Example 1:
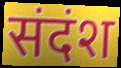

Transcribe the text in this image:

संदंश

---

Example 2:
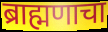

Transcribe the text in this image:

ब्राह्मणाचा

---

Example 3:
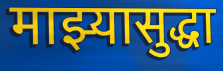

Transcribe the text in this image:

माझ्यासुद्धा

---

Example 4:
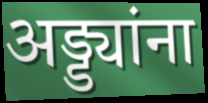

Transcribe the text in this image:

अड्ड्यांना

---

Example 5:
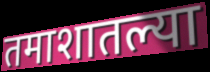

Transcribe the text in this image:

तमाशातल्या